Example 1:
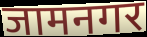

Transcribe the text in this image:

जामनगर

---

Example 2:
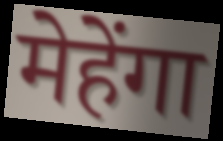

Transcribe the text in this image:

मेहेंगा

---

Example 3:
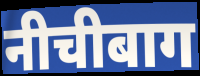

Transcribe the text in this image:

नीचीबाग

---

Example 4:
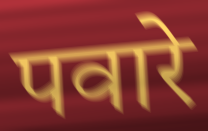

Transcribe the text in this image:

पवारे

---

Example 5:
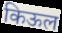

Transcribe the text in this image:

किऊल